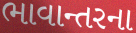
ભાવાન્તરના